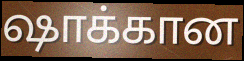
ஷாக்கான